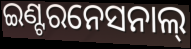
ଇଣ୍ଟରନେସନାଲ୍